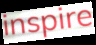
inspire